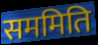
सममिति